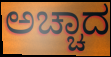
ಅಚ್ಚಾದ